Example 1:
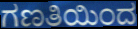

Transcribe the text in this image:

ಗಣತಿಯಿಂದ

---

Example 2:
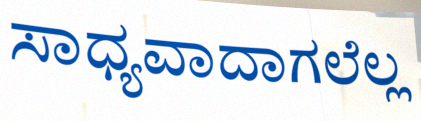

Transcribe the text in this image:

ಸಾಧ್ಯವಾದಾಗಲೆಲ್ಲ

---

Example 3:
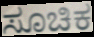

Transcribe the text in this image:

ಸೂಚಿಕ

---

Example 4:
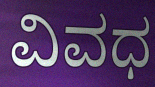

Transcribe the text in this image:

ವಿವಧ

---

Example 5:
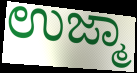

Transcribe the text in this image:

ಉಜ್ಮಾ